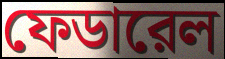
ফেডারেল